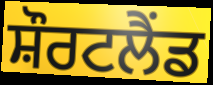
ਸ਼ੌਰਟਲੈਂਡ